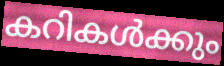
കറികൾക്കും